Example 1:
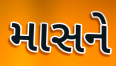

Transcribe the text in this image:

માસને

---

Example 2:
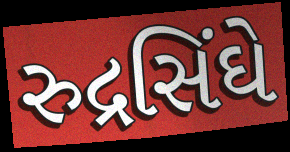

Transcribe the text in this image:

રુદ્રસિંઘે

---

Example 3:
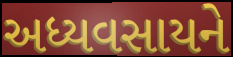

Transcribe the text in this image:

અધ્યવસાયને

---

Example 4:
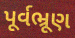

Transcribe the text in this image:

પૂર્વભ્રૂણ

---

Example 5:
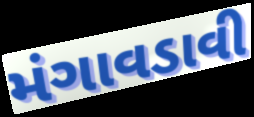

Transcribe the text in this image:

મંગાવડાવી